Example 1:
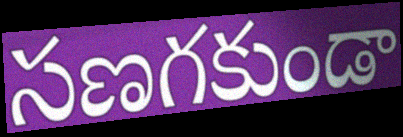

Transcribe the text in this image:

సణగకుండా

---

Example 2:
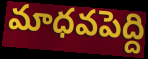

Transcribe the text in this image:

మాధవపెద్ది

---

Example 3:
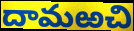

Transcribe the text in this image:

దామఱచి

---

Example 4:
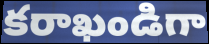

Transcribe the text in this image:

కరాఖండిగా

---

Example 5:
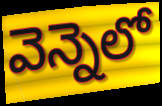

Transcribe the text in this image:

వెన్నెలో